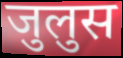
जुलुस